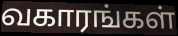
வகாரங்கள்